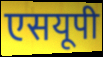
एसयूपी